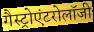
गैस्ट्रोएंटरोलॉजी